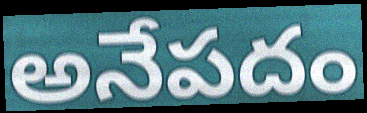
అనేపదం